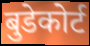
बुडेकोर्ट